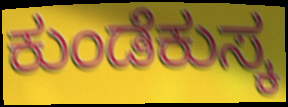
ಕುಂಡೆಕುಸ್ಕ